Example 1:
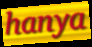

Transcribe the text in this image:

hanya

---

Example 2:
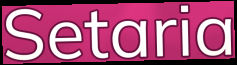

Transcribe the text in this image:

Setaria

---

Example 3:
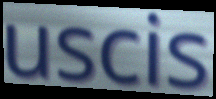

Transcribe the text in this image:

uscis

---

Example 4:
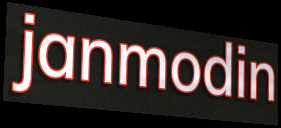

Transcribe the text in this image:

janmodin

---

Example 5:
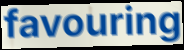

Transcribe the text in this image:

favouring